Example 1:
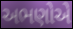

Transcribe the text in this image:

અભણોએ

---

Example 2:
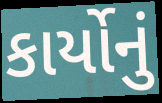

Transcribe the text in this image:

કાર્યોનું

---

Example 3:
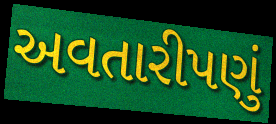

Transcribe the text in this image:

અવતારીપણું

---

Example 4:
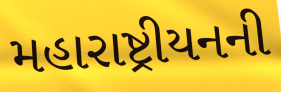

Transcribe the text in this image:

મહારાષ્ટ્રીયનની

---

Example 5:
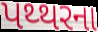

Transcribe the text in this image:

પથ્થરના